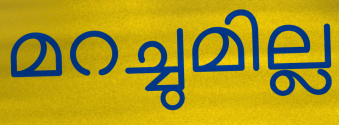
മറച്ചുമില്ല